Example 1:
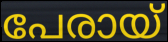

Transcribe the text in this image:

പേരായ്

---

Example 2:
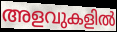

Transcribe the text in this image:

അളവുകളിൽ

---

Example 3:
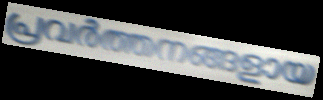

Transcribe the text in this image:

പ്രവർത്തനങ്ങളായ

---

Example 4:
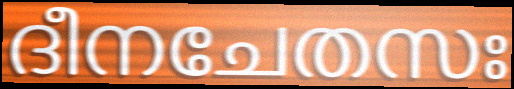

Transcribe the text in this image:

ദീനചേതസഃ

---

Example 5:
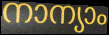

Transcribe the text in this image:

നാന്യാം